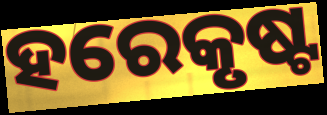
ହରେକୃଷ୍ଟ